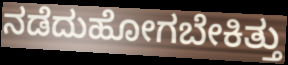
ನಡೆದುಹೋಗಬೇಕಿತ್ತು